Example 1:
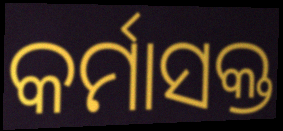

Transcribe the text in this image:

କର୍ମାସକ୍ତ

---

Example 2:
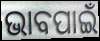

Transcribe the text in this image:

ଭାବପାଇଁ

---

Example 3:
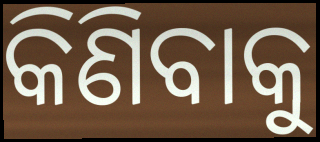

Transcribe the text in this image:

କିଣିବାକୁ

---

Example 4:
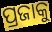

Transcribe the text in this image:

ପ୍ରଜାକୁ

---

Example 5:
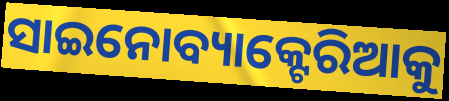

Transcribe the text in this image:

ସାଇନୋବ୍ୟାକ୍ଟେରିଆକୁ